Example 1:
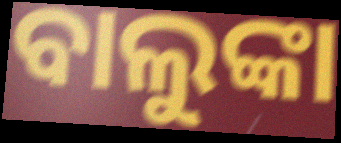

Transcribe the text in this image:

ବାଲୁଙ୍କା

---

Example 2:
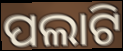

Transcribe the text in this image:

ପଲାଟି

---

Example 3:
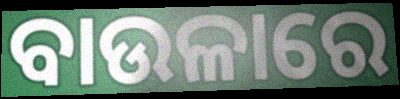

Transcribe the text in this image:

ବାଉଳାରେ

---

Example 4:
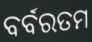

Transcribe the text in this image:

ବର୍ବରତମ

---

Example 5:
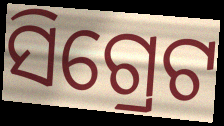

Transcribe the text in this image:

ସିଗ୍ରେଟ